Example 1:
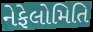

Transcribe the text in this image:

નેફેલોમિતિ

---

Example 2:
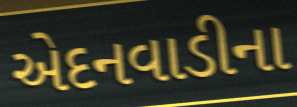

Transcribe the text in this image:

એદનવાડીના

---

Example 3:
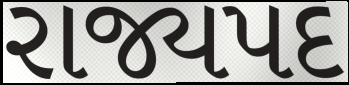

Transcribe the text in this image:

રાજ્યપદ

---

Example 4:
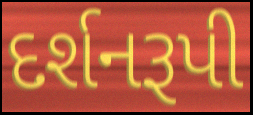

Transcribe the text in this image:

દર્શનરૂપી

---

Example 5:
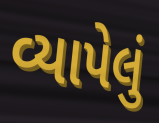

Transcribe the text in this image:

વ્યાપેલું